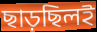
ছাড়ছিলই